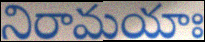
నిరామయాః